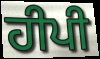
ਹੀਪੀ